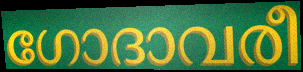
ഗോദാവരീ